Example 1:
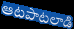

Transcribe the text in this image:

ఆటపాటలాడి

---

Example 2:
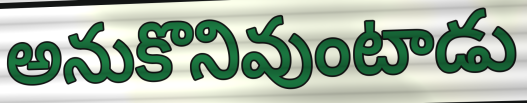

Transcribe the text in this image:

అనుకొనివుంటాడు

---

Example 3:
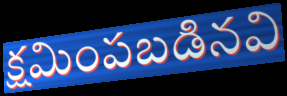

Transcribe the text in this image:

క్షమింపబడినవి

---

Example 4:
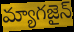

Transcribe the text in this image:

మ్యాగజైన్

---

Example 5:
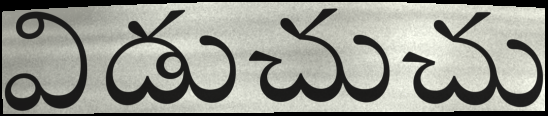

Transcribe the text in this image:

విడుచుచు